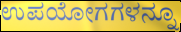
ಉಪಯೋಗಗಳನ್ನೂ